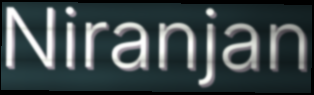
Niranjan